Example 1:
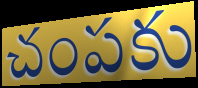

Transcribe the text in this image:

చంపకు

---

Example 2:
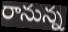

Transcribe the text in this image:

రానున్న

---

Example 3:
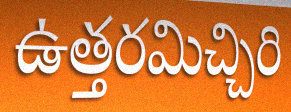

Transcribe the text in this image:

ఉత్తరమిచ్చిరి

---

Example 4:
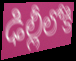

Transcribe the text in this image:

ఢిల్లీలోకి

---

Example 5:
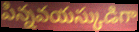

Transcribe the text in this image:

పిన్నవయస్కుడిగా